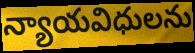
న్యాయవిధులను